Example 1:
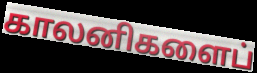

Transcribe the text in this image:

காலனிகளைப்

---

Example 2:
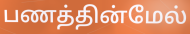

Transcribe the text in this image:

பணத்தின்மேல்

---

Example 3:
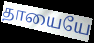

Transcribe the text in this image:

தாயையே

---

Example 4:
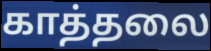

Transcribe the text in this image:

காத்தலை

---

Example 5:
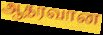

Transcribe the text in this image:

ஆதரவான